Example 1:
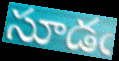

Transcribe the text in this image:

సూడఁ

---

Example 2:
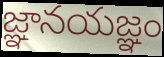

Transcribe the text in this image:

జ్ఞానయజ్ఞం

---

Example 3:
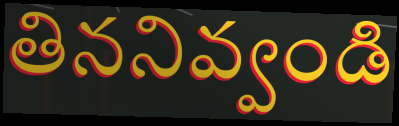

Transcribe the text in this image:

తిననివ్వండి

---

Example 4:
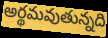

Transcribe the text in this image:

అర్థమవుతున్నది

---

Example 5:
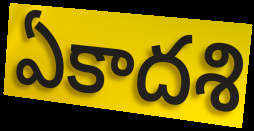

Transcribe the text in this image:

ఏకాదశి